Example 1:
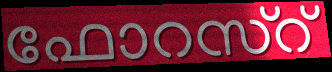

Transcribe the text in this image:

ഫോറസ്റ്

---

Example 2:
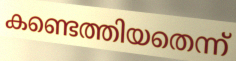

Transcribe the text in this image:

കണ്ടെത്തിയതെന്ന്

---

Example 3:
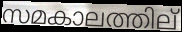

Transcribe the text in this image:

സമകാലത്തില്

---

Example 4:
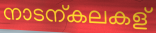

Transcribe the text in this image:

നാടന്കലകള്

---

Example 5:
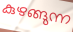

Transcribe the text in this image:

കുഴങ്ങുന്ന